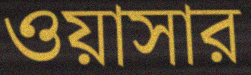
ওয়াসার